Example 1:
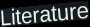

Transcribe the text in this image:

Literature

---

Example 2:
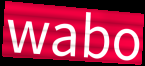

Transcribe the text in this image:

wabo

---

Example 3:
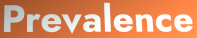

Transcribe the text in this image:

Prevalence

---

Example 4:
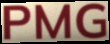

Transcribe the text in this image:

PMG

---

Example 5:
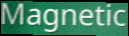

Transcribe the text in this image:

Magnetic